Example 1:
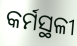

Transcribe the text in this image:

କର୍ମସ୍ଥଳୀ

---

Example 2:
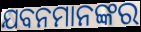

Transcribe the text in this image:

ଯବନମାନଙ୍କର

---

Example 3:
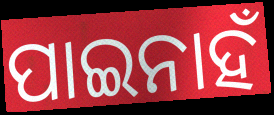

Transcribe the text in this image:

ପାଇନାହଁ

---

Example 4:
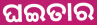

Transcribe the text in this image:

ଘଇତାର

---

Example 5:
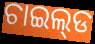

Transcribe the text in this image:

ଚାଇଲ୍‌ଡ